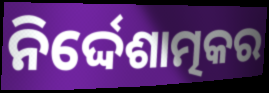
ନିର୍ଦ୍ଦେଶାତ୍ମକର